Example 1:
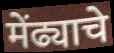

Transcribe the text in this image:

मेंढ्याचे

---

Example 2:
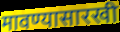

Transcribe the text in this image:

मावण्यासारखी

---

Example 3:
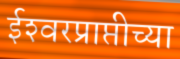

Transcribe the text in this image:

ईश्वरप्राप्तीच्या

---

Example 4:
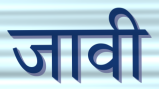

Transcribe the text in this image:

जावी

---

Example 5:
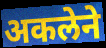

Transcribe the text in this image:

अकलेने